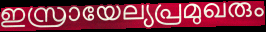
ഇസ്രായേല്യപ്രമുഖരും